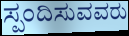
ಸ್ಪಂದಿಸುವವರು